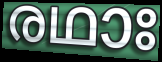
രഥാഃ